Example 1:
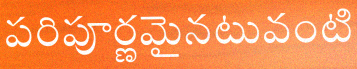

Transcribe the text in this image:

పరిపూర్ణమైనటువంటి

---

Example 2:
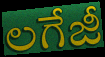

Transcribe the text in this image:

లగేజీ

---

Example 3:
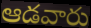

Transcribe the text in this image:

ఆడవారు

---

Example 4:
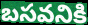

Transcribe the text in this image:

బసవనికి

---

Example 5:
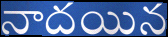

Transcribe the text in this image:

నాదయిన